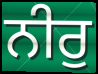
ਨੀਰੁ